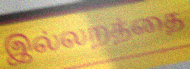
இல்லறத்தை